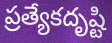
ప్రత్యేకదృష్టి